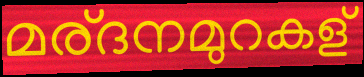
മര്ദനമുറകള്